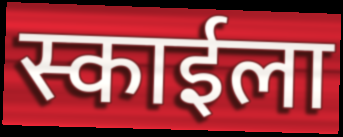
स्काईला